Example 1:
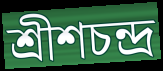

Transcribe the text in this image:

শ্রীশচন্দ্র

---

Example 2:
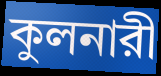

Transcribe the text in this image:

কুলনারী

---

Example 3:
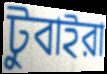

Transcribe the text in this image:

টুবাইরা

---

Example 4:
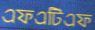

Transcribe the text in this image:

এফএটিএফ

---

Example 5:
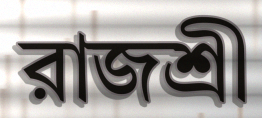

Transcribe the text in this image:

রাজশ্রী